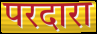
परदारा